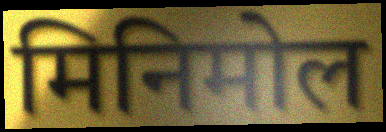
मिनिमोल